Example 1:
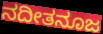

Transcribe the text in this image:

ನದೀತನೂಜ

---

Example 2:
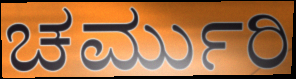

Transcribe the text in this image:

ಚರ್ಮುರಿ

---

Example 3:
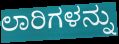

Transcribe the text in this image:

ಲಾರಿಗಳನ್ನು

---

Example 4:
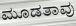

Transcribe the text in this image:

ಮೂಡತಾವು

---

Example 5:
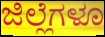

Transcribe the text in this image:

ಜಿಲ್ಲೆಗಳೂ